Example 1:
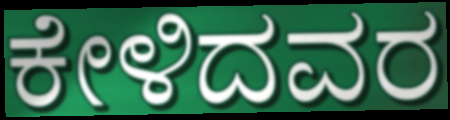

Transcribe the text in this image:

ಕೇಳಿದವರ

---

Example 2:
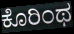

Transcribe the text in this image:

ಕೊರಿಂಥ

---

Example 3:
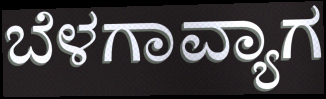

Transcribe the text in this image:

ಬೆಳಗಾವ್ಯಾಗ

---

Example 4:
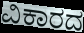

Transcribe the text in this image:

ವಿಕಾರದ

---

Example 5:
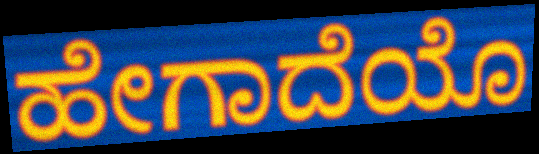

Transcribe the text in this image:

ಹೇಗಾದೆಯೊ